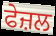
ਫੇਜ਼ਲ